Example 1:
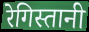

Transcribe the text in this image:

रेगिस्तानी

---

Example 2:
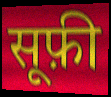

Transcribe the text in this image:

सूफ़ी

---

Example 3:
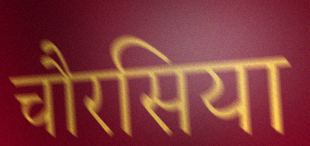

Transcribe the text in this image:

चौरसिया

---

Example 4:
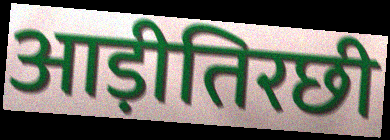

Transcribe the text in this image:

आड़ीतिरछी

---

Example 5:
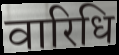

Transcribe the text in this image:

वारिधि